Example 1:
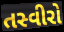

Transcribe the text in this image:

તસ્વીરો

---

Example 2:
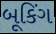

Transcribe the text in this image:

બૂકિંગ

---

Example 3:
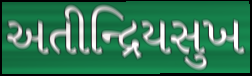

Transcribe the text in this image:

અતીન્દ્રિયસુખ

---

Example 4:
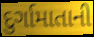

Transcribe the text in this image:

દુર્ગામાતાની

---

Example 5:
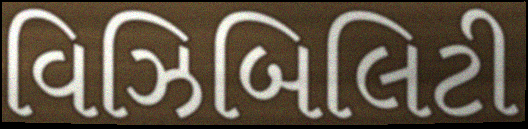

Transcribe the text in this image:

વિઝિબિલિટી